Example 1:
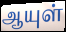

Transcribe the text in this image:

ஆயுள்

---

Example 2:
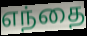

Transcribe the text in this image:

எந்தை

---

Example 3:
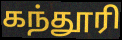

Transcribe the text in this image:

கந்தூரி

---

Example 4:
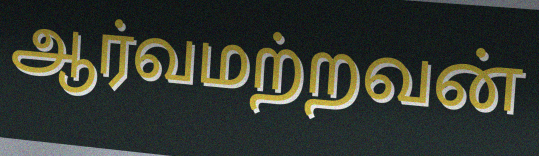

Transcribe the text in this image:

ஆர்வமற்றவன்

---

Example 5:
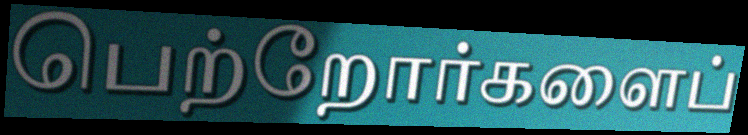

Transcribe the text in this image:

பெற்றோர்களைப்